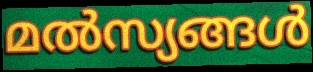
മൽസ്യങ്ങൾ